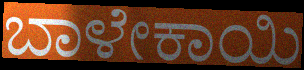
ಬಾಳೇಕಾಯಿ